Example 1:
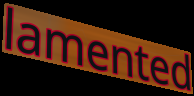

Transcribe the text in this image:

lamented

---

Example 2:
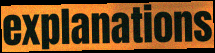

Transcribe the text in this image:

explanations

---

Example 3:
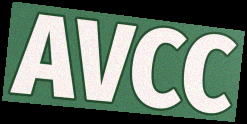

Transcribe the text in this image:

AVCC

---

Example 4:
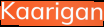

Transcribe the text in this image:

Kaarigan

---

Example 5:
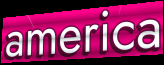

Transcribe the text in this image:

america